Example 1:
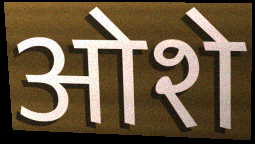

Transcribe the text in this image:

ओशे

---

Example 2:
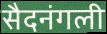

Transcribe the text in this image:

सैदनंगली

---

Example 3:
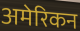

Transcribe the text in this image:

अमेरिकन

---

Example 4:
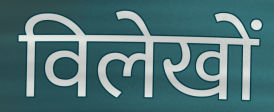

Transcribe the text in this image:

विलेखों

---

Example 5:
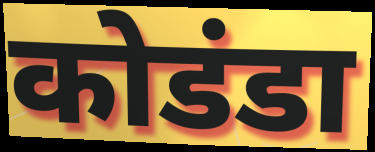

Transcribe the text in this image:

कोडंडा